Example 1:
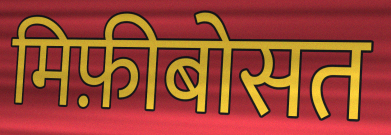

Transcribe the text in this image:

मिफ़ीबोसत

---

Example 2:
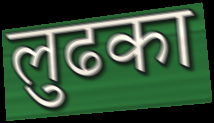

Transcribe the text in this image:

लुढका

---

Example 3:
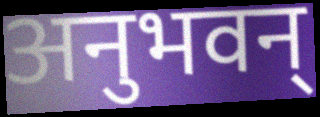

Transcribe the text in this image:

अनुभवन्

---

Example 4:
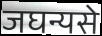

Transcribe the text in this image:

जघन्यसे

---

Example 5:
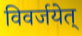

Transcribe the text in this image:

विवर्जयेत्